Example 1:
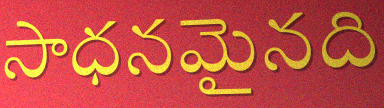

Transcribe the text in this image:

సాధనమైనది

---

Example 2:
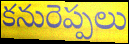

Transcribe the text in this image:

కనురెప్పలు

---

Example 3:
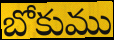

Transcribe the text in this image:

బోకుము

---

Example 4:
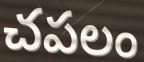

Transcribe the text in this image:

చపలం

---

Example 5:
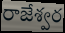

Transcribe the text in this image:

రాజేశ్వర